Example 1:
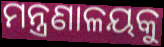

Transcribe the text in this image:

ମନ୍ତ୍ରଣାଳୟକୁ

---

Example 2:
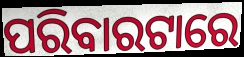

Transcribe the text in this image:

ପରିବାରଟାରେ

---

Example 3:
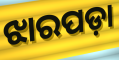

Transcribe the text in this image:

ଝାରପଡ଼ା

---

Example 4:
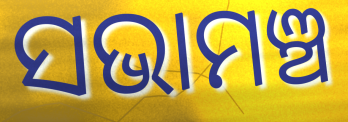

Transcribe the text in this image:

ସଭାମଞ୍ଚ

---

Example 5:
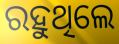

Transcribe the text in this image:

ରହୁଥିଲେ